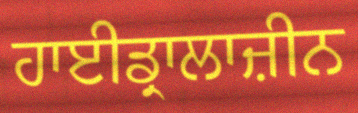
ਹਾਈਡ੍ਰਾਲਾਜ਼ੀਨ